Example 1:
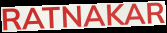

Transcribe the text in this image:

RATNAKAR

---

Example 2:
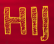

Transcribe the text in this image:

HIJ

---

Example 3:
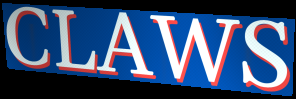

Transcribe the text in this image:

CLAWS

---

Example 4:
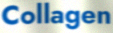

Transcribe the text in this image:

Collagen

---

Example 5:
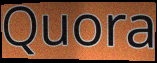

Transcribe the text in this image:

Quora